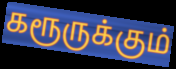
கரூருக்கும்